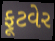
ફૂટવેર